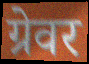
ग्रेवर